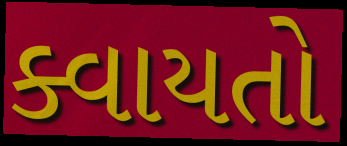
ક્વાયતો